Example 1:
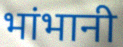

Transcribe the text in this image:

भांभानी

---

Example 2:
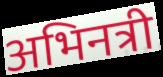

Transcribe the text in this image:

अभिनत्री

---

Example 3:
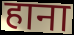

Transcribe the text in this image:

हाना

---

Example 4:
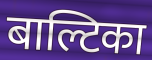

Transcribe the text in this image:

बाल्टिका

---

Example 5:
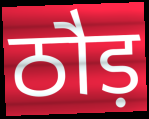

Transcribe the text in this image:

ठौड़